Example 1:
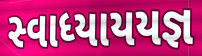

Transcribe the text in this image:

સ્વાધ્યાયયજ્ઞ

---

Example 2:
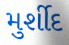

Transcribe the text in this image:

મુર્શીદ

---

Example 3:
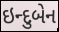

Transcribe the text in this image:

ઇન્દુબેન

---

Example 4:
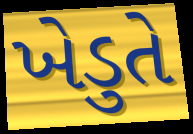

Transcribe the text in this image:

ખેડુતે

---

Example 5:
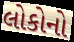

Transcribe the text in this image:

લોકોનો